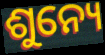
ଶୁନ୍ୟେ